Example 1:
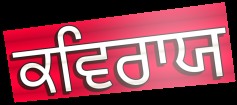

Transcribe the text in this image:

ਕਵਿਰਾਯ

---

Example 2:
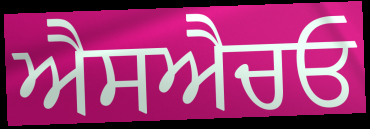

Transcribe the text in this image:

ਐਸਐਚਓ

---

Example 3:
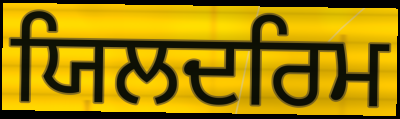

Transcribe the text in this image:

ਯਿਲਦਰਿਮ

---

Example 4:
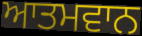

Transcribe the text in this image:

ਆਤਮਵਾਨ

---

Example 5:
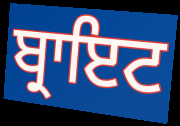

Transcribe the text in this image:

ਬ੍ਰਾਇਟ